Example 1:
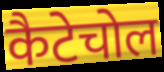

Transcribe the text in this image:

कैटेचोल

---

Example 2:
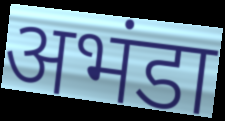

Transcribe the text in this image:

अभंडा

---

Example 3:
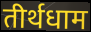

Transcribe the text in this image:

तीर्थधाम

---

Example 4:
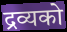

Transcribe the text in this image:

द्रव्यको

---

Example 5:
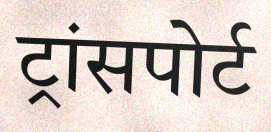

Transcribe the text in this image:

ट्रांसपोर्ट